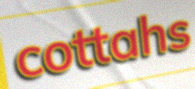
cottahs